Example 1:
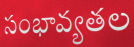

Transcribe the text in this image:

సంభావ్యతల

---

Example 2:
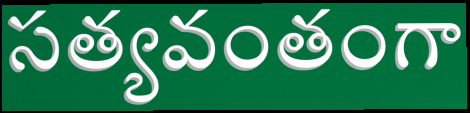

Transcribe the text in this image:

సత్యవంతంగా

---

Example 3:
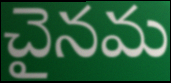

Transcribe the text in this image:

చైనమ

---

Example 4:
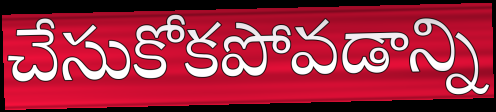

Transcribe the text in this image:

చేసుకోకపోవడాన్ని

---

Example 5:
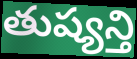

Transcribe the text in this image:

తుష్యన్తి